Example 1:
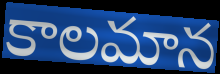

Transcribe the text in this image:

కాలమాన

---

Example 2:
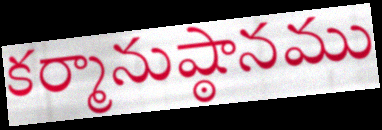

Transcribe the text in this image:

కర్మానుష్ఠానము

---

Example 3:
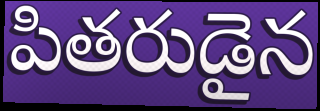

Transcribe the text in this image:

పితరుడైన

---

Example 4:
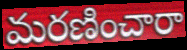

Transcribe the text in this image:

మరణించారా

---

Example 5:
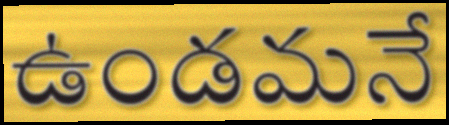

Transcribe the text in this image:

ఉండమనే